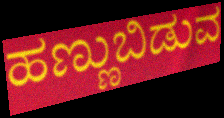
ಹಣ್ಣುಬಿಡುವ